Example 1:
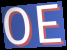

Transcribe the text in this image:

OE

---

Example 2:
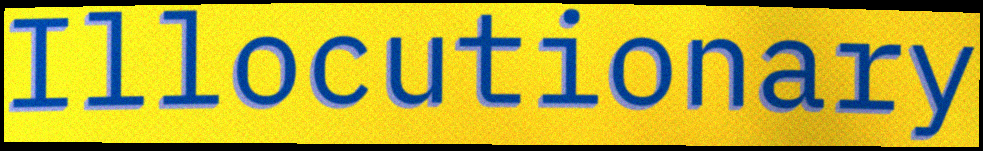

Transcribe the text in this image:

Illocutionary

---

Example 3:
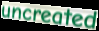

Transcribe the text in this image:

uncreated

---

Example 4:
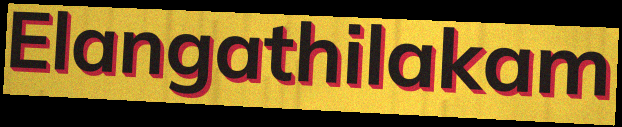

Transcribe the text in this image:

Elangathilakam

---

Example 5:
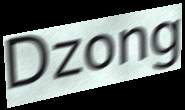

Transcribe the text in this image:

Dzong